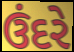
ઉંદરે